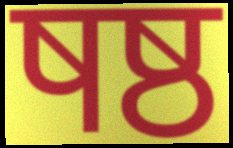
षष्ठ